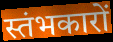
स्तंभकारों